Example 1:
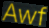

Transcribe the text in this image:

Awf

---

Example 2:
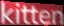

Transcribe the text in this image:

kitten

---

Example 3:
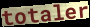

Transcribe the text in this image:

totaler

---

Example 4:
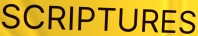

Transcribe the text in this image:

SCRIPTURES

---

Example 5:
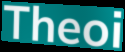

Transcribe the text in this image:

Theoi